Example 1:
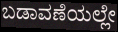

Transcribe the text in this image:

ಬಡಾವಣೆಯಲ್ಲೇ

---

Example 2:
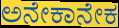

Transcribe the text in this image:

ಅನೇಕಾನೇಕ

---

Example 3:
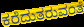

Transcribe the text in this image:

ಕರೆದುತರುವಂತೆ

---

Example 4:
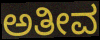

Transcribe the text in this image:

ಅತೀವ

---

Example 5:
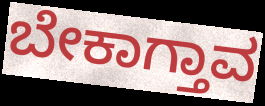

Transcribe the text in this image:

ಬೇಕಾಗ್ತಾವ